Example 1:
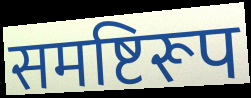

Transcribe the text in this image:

समष्टिरूप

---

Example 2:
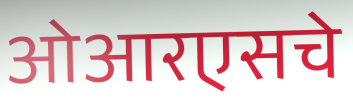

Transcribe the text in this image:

ओआरएसचे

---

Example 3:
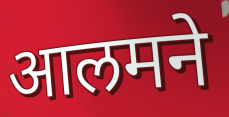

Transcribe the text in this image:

आलमने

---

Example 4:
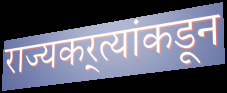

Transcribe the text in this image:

राज्यकर्त्यांकडून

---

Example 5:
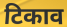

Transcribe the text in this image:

टिकाव